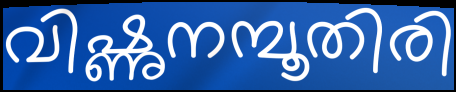
വിഷ്ണുനമ്പൂതിരി